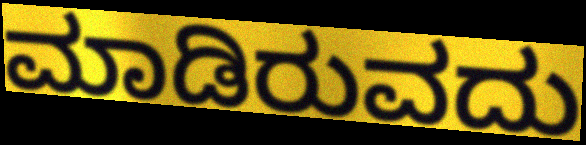
ಮಾಡಿರುವದು